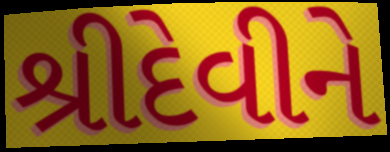
શ્રીદેવીને